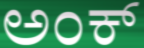
ಅಂಕ್